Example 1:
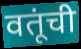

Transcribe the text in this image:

वतूंची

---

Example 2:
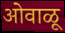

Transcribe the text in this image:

ओवाळू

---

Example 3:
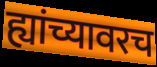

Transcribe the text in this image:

ह्यांच्यावरच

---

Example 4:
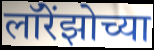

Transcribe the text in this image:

लॉरेंझोच्या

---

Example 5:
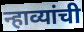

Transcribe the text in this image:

न्हाव्यांची